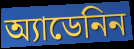
অ্যাডেনিন